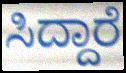
ಸಿದ್ದಾರೆ